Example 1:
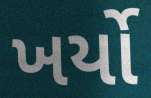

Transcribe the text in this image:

ખર્યો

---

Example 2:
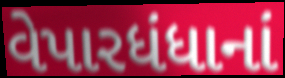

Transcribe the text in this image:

વેપારધંધાનાં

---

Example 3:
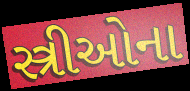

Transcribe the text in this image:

સ્ત્રીઓના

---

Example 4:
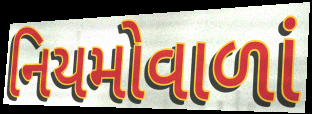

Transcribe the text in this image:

નિયમોવાળાં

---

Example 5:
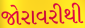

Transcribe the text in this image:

જોરાવરીથી